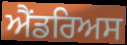
ਐਂਡਰਿਅਸ